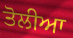
ਤੋਲੀਆ